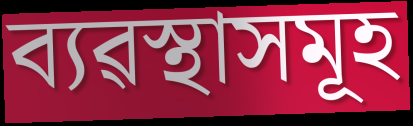
ব্যৱস্থাসমূহ